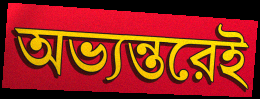
অভ্যন্তরেই